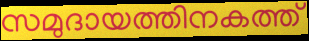
സമുദായത്തിനകത്ത്